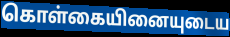
கொள்கையினையுடைய